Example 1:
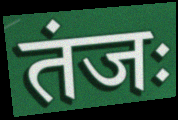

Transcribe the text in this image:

तंजः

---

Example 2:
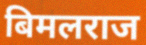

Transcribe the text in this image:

बिमलराज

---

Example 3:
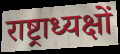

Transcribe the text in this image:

राष्ट्राध्यक्षों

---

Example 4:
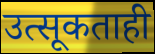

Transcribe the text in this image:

उत्सूकताही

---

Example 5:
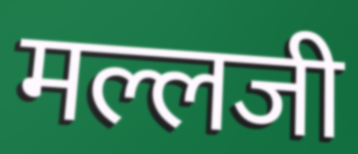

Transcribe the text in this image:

मल्लजी